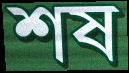
শষ